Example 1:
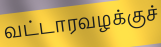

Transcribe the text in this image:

வட்டாரவழக்குச்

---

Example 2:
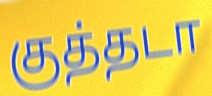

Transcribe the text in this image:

குத்தடா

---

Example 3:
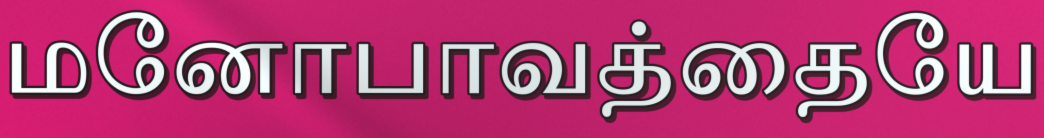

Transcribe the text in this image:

மனோபாவத்தையே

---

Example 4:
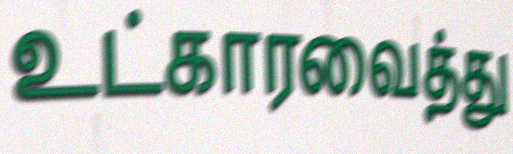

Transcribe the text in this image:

உட்காரவைத்து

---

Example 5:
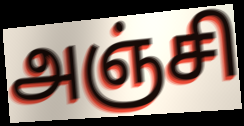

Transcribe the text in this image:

அஞ்சி